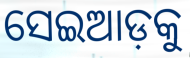
ସେଇଆଡ଼କୁ